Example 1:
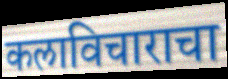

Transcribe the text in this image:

कलाविचाराचा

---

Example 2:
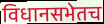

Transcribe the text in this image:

विधानसभेतच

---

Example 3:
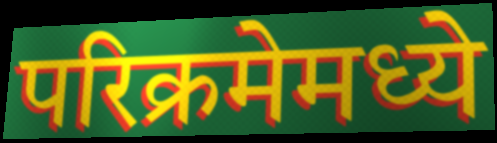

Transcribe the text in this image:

परिक्रमेमध्ये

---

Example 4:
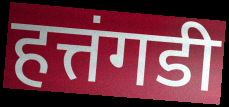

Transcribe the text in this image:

हत्तंगडी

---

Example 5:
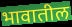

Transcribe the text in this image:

भावातील